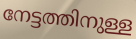
നേട്ടത്തിനുള്ള